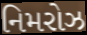
નિમરોઝ